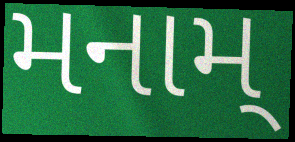
મનામ્